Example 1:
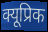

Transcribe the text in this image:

क्यूप्रिक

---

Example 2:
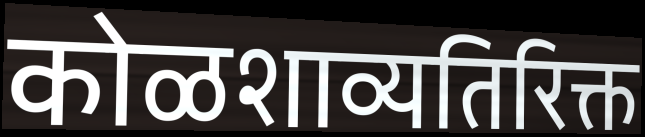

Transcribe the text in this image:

कोळशाव्यतिरिक्त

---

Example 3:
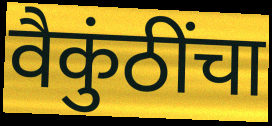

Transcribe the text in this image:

वैकुंठींचा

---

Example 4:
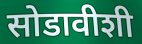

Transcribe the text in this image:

सोडावीशी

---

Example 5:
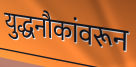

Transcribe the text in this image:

युद्धनौकांवरून